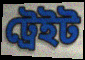
ট্রেইট